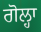
ਗੋਲ੍ਹਾ